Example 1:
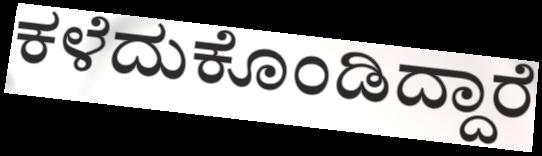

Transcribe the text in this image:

ಕಳೆದುಕೊಂಡಿದ್ದಾರೆ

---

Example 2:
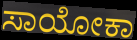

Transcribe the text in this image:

ಸಾಯೋಕಾ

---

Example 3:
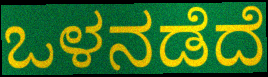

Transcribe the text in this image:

ಒಳನಡೆದೆ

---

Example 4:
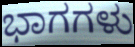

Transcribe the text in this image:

ಭಾಗಗಳು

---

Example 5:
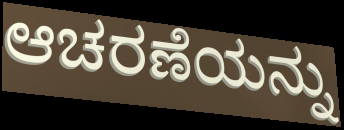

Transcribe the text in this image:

ಆಚರಣೆಯನ್ನು